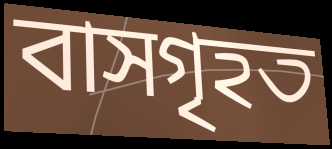
বাসগৃহত